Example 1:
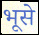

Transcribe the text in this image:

भूसे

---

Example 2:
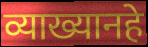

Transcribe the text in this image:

व्याख्यानहे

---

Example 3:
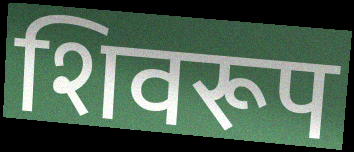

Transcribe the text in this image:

शिवरूप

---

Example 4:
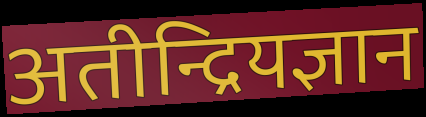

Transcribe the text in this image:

अतीन्द्रियज्ञान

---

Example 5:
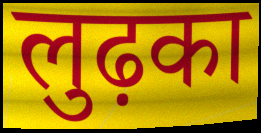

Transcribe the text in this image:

लुढ़का